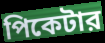
পিকেটার